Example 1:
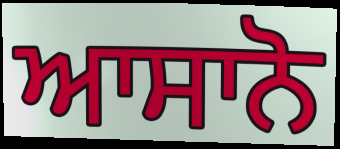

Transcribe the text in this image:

ਆਸਾਨੋ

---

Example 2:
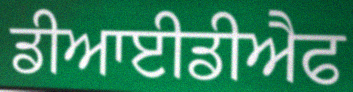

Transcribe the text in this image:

ਡੀਆਈਡੀਐਫ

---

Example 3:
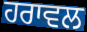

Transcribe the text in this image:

ਹਰਾਵਲ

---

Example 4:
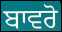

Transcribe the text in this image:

ਬਾਵਰੋ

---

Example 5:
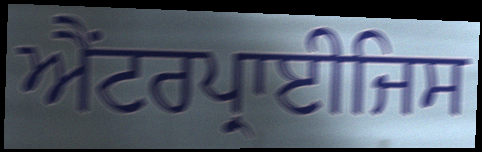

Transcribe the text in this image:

ਐਂਟਰਪ੍ਰਾਈਜਿਸ